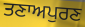
ਤਣਾਅਪੁਰਣ